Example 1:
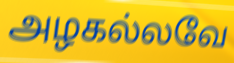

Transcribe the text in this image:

அழகல்லவே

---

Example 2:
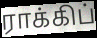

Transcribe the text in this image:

ராக்கிப்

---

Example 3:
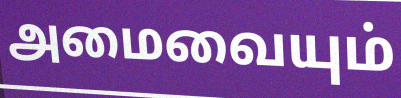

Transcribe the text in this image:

அமைவையும்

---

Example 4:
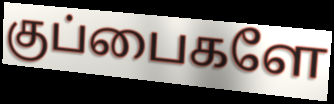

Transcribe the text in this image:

குப்பைகளே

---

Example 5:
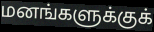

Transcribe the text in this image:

மனங்களுக்குக்